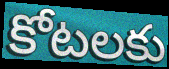
కోటలకు